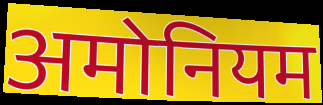
अमोनियम